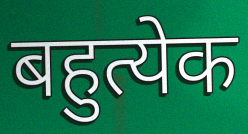
बहुत्येक